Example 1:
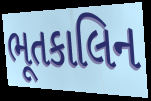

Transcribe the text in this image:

ભૂતકાલિન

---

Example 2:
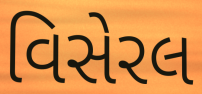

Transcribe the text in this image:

વિસેરલ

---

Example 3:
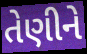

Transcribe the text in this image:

તેણીને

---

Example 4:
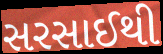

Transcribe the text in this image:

સરસાઈથી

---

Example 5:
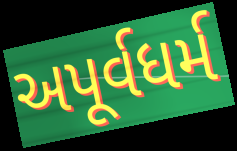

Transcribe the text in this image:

અપૂર્વધર્મ